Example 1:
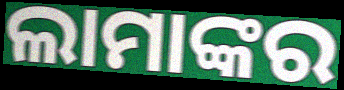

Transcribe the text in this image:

ଲାମାଙ୍କର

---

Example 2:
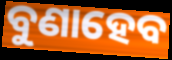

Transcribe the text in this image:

ବୁଣାହେବ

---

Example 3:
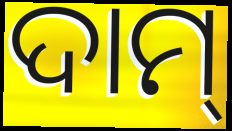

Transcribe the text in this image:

ଦାମ୍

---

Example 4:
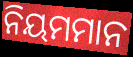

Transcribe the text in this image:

ନିୟମମାନ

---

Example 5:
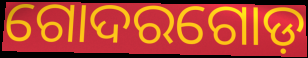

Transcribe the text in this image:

ଗୋଦରଗୋଡ଼